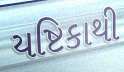
યષ્ટિકાથી